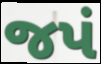
જપં